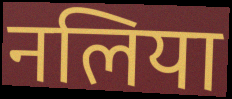
नलिया